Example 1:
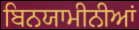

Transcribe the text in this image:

ਬਿਨਯਾਮੀਨੀਆਂ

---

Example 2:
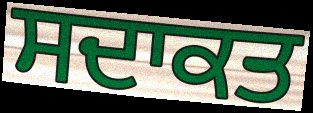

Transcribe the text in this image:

ਸਦਾਕਤ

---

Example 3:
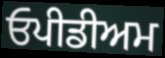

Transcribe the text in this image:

ਓਪੀਡੀਅਮ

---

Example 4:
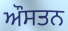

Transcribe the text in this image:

ਔਸਤਨ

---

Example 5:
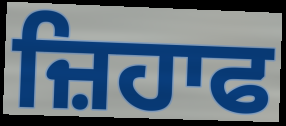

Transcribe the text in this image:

ਜ਼ਿਹਾਫ